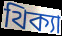
থিক্যা